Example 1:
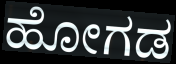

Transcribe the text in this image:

ಹೋಗಡ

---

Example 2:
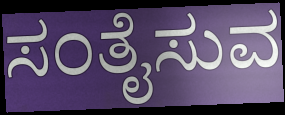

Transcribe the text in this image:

ಸಂತೈಸುವ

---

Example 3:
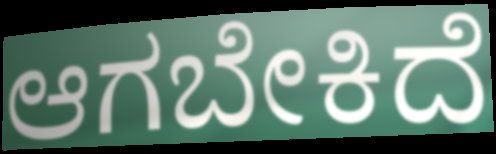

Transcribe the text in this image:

ಆಗಬೇಕಿದೆ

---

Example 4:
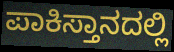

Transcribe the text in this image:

ಪಾಕಿಸ್ತಾನದಲ್ಲಿ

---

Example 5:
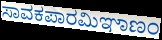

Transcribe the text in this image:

ಸಾವಕಪಾರಮಿಞಾಣಂ